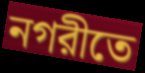
নগরীতে